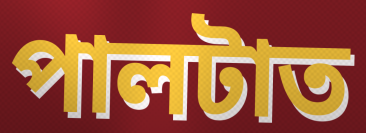
পালটাত